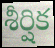
శీర్షిక